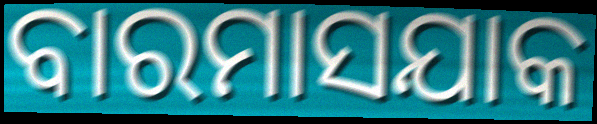
ବାରମାସଯାକ